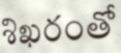
శిఖరంతో